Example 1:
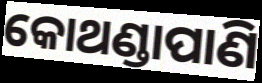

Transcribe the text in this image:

କୋଥଣ୍ଡାପାଣି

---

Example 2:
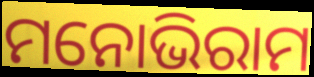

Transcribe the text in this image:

ମନୋଭିରାମ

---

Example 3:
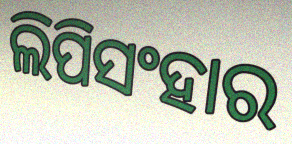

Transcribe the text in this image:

ଲିପିସଂହାର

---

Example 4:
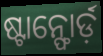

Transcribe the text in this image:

ଷ୍ଟାନ୍ଫୋର୍ଡ଼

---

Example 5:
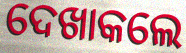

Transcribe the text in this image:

ଦେଖାକଲେ